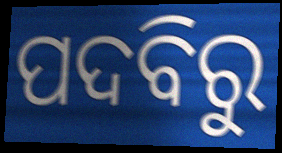
ପଦବିରୁ